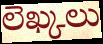
లెఖ్కలు